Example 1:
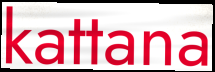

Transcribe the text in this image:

kattana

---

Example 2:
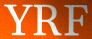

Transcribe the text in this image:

YRF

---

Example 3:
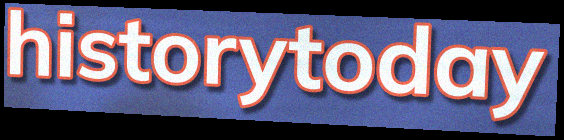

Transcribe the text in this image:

historytoday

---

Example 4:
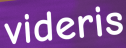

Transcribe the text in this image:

videris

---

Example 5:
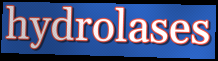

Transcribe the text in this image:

hydrolases